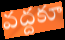
వద్దకూ